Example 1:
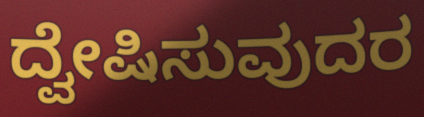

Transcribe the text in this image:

ದ್ವೇಷಿಸುವುದರ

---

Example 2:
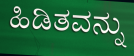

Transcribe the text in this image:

ಹಿಡಿತವನ್ನು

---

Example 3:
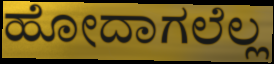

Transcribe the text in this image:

ಹೋದಾಗಲೆಲ್ಲ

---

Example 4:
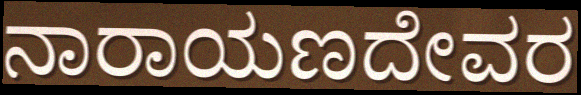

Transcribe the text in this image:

ನಾರಾಯಣದೇವರ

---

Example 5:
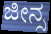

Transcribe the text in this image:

ಜೀನ್ಸ